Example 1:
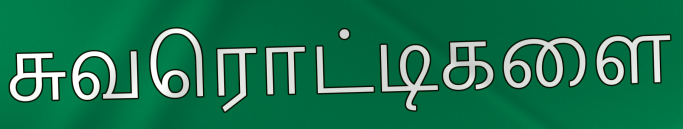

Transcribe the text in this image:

சுவரொட்டிகளை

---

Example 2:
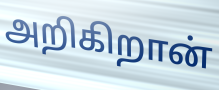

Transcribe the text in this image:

அறிகிறான்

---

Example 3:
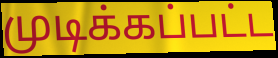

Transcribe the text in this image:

முடிக்கப்பட்ட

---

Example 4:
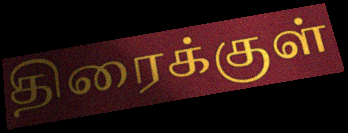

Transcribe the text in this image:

திரைக்குள்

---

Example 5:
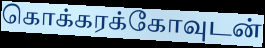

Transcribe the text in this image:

கொக்கரக்கோவுடன்